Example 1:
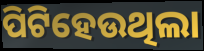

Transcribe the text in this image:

ପିଟିହେଉଥିଲା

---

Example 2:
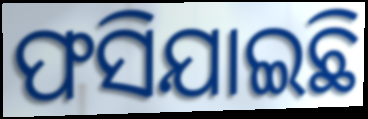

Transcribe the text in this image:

ଫସିଯାଇଛି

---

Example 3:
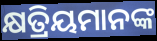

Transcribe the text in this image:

କ୍ଷତ୍ରିୟମାନଙ୍କ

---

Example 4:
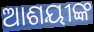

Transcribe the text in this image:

ଆଶୟୀଙ୍କ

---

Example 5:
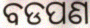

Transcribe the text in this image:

ବଡପଣ